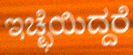
ಇಚ್ಛೆಯಿದ್ದರೆ